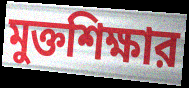
মুক্তশিক্ষার